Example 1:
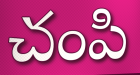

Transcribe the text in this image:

చంపి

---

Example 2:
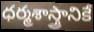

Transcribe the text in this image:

ధర్మశాస్త్రానికే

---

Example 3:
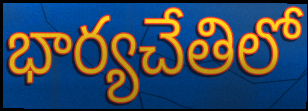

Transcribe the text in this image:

భార్యచేతిలో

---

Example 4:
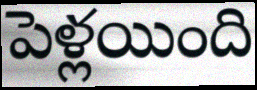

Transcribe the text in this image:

పెళ్లయింది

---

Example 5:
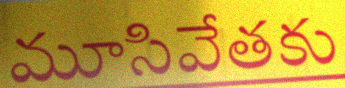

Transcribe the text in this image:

మూసివేతకు